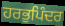
ਹਰਭੁਪਿੰਦਰ